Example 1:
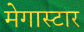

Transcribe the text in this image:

मेगास्टार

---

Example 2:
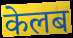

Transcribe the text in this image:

केलब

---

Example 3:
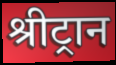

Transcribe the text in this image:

श्रीट्रान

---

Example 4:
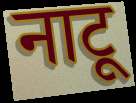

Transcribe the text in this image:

नाटू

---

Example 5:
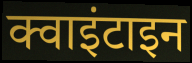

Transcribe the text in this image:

क्वाइंटाइन